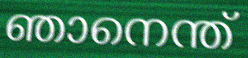
ഞാനെന്ത്